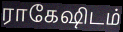
ராகேஷிடம்